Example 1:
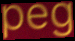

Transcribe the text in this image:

peg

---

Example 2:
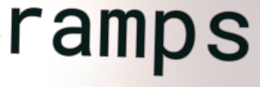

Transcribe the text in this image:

ramps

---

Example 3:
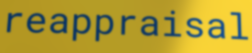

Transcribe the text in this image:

reappraisal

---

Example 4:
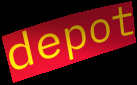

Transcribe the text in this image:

depot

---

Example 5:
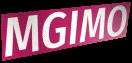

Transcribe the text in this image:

MGIMO